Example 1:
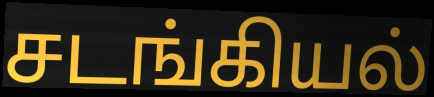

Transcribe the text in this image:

சடங்கியல்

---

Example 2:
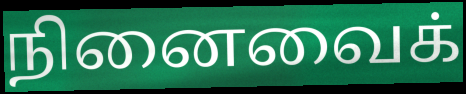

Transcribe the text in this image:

நினைவைக்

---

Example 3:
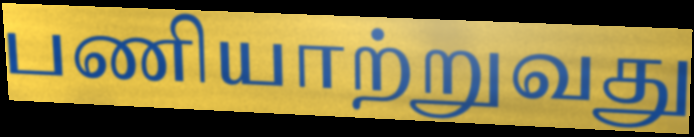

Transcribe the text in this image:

பணியாற்றுவது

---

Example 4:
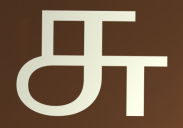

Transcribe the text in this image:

சு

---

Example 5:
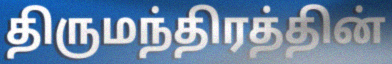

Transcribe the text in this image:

திருமந்திரத்தின்